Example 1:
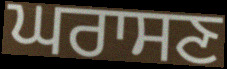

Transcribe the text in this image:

ਘਰਾਸਣ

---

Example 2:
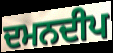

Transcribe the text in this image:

ਦਮਨਦੀਪ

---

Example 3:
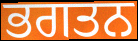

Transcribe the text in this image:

ਭਗਤਨ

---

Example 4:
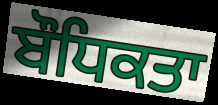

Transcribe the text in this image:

ਬੌਧਿਕਤਾ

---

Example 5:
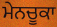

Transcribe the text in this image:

ਮੇਨਚੂਕਾ